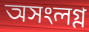
অসংলগ্ন